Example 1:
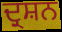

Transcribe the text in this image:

ਦ੍ਰਸ਼ਨ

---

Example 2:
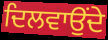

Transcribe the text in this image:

ਦਿਲਵਾਉਂਦੇ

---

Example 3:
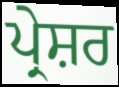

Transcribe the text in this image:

ਪ੍ਰੇਸ਼ਰ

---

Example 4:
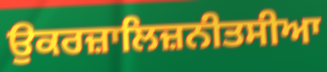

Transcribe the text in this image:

ਉਕਰਜ਼ਾਲਿਜ਼ਨੀਤਸੀਆ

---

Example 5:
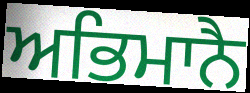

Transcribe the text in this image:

ਅਭਿਮਾਨੈ